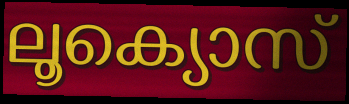
ലൂക്യൊസ്